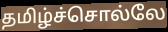
தமிழ்ச்சொல்லே